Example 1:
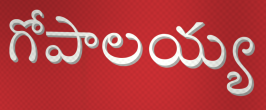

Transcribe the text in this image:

గోపాలయ్య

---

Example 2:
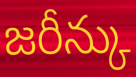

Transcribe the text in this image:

జరీన్కు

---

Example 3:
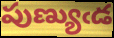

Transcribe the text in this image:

పుణ్యుఁడ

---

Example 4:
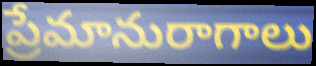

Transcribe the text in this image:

ప్రేమానురాగాలు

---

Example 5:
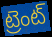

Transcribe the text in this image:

ట్రెంట్